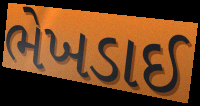
ભેખડાઈ